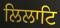
ਲਿਲਾਟਿ